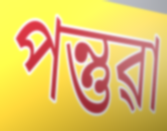
পন্তুৱা